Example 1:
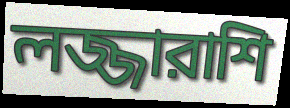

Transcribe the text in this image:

লজ্জারাশি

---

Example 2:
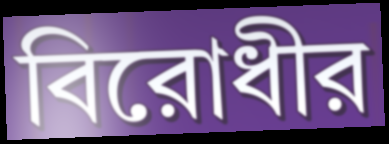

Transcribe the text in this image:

বিরোধীর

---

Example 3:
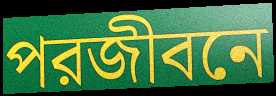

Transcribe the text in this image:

পরজীবনে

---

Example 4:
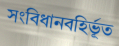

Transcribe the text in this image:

সংবিধানবহির্ভূত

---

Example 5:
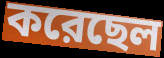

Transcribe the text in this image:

করেছেল